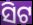
ସିଟ